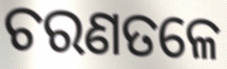
ଚରଣତଳେ